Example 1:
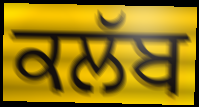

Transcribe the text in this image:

ਕਲੱਬ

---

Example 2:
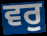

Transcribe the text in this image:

ਵਰੁ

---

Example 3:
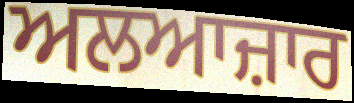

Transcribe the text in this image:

ਅਲਆਜ਼ਾਰ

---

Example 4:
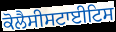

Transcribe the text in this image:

ਕੋਲੈਸੀਸਟਾਈਟਿਸ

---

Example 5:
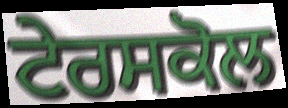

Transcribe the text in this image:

ਟੇਰਸਕੋਲ